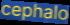
cephalo